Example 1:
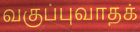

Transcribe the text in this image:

வகுப்புவாதக்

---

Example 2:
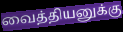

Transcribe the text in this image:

வைத்தியனுக்கு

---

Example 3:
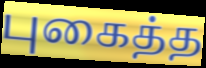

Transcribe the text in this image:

புகைத்த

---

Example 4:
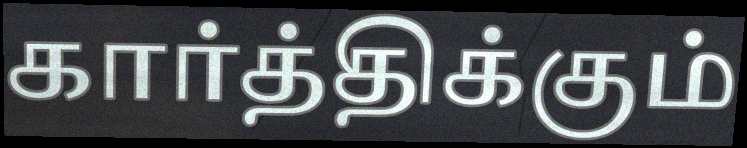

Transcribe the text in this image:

கார்த்திக்கும்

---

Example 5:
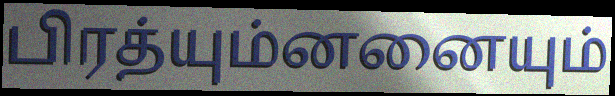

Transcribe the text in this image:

பிரத்யும்னனையும்